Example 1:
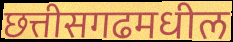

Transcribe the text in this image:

छत्तीसगढमधील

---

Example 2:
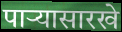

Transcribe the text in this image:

पाऱ्यासारखे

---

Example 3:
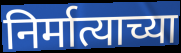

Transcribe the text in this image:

निर्मात्याच्या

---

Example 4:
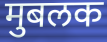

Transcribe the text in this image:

मुबलक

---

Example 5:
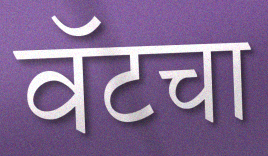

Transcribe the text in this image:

वॅटचा